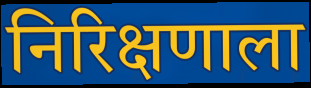
निरिक्षणाला